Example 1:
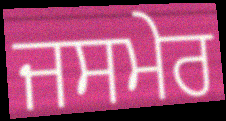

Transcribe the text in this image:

ਜਸਮੇਰ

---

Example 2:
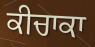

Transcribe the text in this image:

ਕੀਚਾਕਾ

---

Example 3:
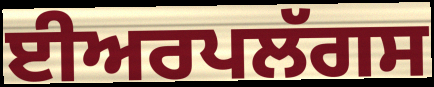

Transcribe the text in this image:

ਈਅਰਪਲੱਗਸ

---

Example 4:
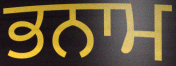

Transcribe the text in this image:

ਭਨਾਮ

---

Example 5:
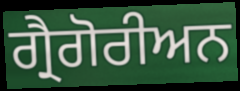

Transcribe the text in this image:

ਗ੍ਰੈਗੋਰੀਅਨ